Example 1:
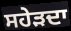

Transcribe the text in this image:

ਸਹੇੜਦਾ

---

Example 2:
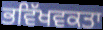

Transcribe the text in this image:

ਭਵਿੱਖਵਕਤਾ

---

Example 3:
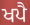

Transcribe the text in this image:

ਖਪੈ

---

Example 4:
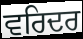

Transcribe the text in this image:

ਵਰਿਦਰ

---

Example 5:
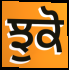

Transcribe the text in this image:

ਝੁਕੋ